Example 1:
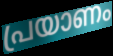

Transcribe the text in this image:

പ്രയാണം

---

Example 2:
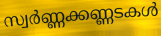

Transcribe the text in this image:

സ്വർണ്ണക്കണ്ണടകൾ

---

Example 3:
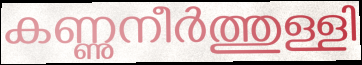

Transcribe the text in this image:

കണ്ണുനീർത്തുള്ളി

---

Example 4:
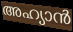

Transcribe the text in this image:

അഹ്യാൻ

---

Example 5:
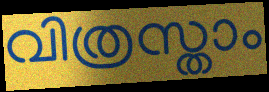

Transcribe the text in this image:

വിത്രസ്താം